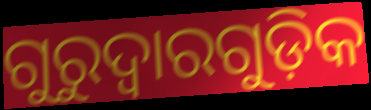
ଗୁରୁଦ୍ବାରଗୁଡ଼ିକ